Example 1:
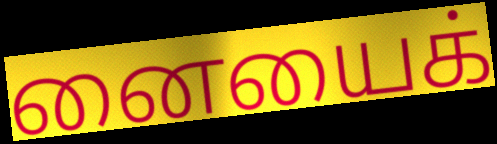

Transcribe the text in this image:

னையைக்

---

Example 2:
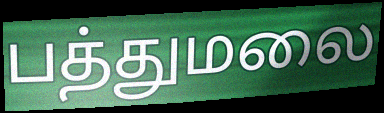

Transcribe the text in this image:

பத்துமலை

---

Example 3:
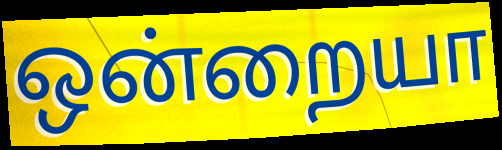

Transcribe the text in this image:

ஒன்றையா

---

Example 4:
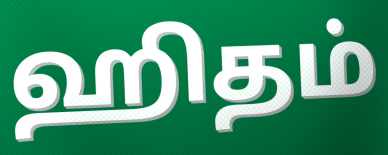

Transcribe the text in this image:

ஹிதம்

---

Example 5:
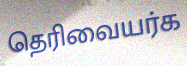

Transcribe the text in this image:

தெரிவையர்க